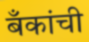
बँकांची